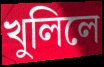
খুলিলে